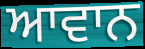
ਆਵਾਨ